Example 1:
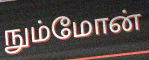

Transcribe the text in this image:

நும்மோன்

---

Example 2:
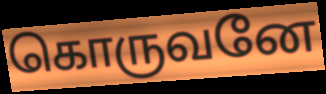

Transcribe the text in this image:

கொருவனே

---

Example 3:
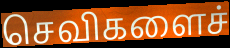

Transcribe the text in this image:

செவிகளைச்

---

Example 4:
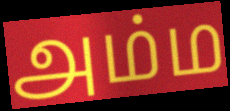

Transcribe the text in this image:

அம்ம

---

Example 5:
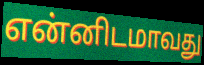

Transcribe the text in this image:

என்னிடமாவது